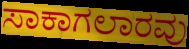
ಸಾಕಾಗಲಾರವು